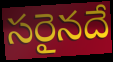
సరైనదే